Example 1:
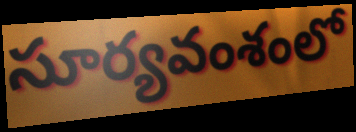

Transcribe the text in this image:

సూర్యవంశంలో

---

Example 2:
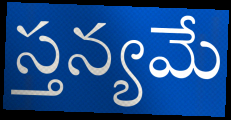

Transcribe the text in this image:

స్తన్యమే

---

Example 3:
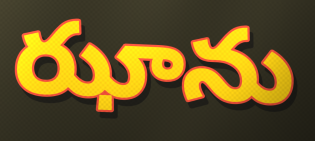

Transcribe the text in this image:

ఝాను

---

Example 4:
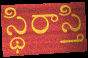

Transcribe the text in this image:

స్థిరాస్తి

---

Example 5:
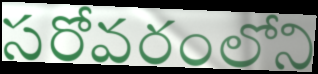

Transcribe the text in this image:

సరోవరంలోని